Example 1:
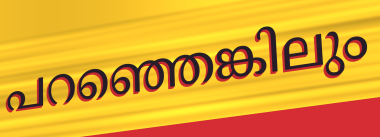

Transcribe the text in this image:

പറഞ്ഞെങ്കിലും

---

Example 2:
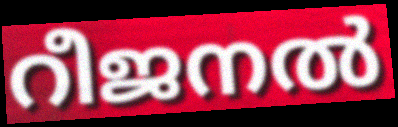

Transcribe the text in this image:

റീജനൽ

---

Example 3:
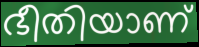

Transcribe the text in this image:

ഭീതിയാണ്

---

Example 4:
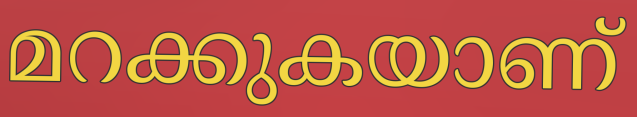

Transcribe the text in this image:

മറക്കുകയാണ്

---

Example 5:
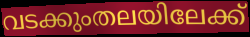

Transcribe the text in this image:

വടക്കുംതലയിലേക്ക്